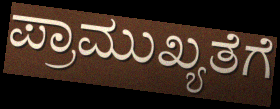
ಪ್ರಾಮುಖ್ಯತೆಗೆ